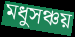
মধুসঞ্চয়